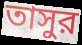
তাসুর